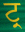
ਟ੍ਰ